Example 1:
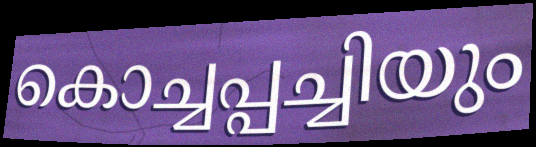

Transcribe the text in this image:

കൊച്ചപ്പച്ചിയും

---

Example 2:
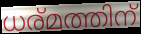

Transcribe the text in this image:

ധര്മത്തിന്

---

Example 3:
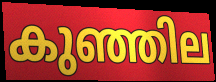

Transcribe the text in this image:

കുഞ്ഞില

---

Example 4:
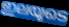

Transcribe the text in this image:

ഇലയുടെ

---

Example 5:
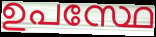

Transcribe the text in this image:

ഉപസ്ഥേ